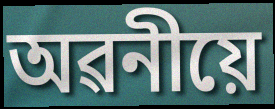
অৱনীয়ে